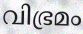
വിഭ്രമം